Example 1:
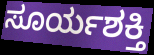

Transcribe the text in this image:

ಸೂರ್ಯಶಕ್ತಿ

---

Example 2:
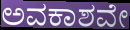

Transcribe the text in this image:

ಅವಕಾಶವೇ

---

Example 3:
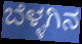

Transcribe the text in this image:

ಬೆಳ್ಳಗಿನ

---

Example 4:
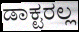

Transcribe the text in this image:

ಡಾಕ್ಟರಲ್ಲ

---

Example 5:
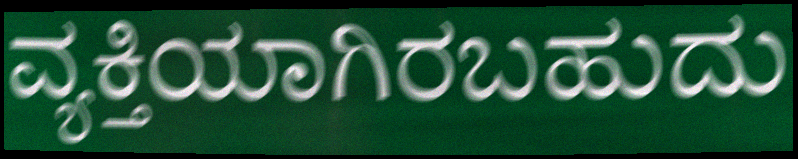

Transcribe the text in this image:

ವ್ಯಕ್ತಿಯಾಗಿರಬಹುದು